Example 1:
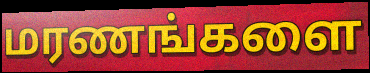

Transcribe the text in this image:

மரணங்களை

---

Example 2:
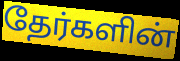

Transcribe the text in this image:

தேர்களின்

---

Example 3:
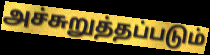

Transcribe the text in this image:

அச்சுறுத்தப்படும்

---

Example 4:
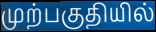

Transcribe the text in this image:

முற்பகுதியில்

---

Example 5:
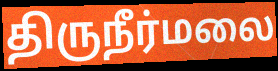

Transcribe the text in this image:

திருநீர்மலை